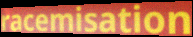
racemisation